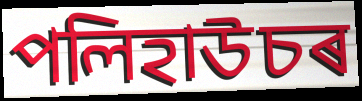
পলিহাউচৰ